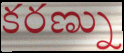
కరణ్ను